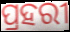
ପ୍ରହରୀ